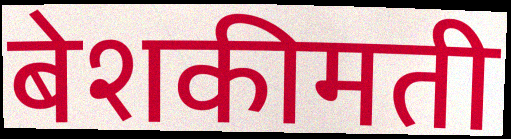
बेशकीमती